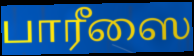
பாரீஸை